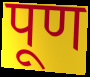
पूण